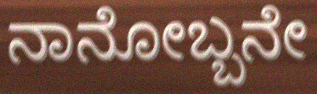
ನಾನೋಬ್ಬನೇ